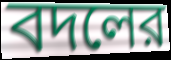
বদলের